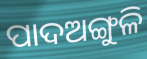
ପାଦଅଙ୍ଗୁଳି